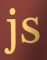
js